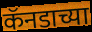
कॅनडाच्या